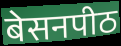
बेसनपीठ